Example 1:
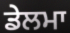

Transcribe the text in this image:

ਡੇਲਮਾ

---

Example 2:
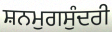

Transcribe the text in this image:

ਸ਼ਨਮੁਗਸੁੰਦਰੀ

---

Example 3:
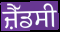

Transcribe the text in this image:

ਜ਼ੈੱਡਸੀ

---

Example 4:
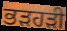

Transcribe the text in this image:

ਭੜਹੜੀ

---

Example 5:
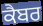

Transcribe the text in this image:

ਕੈਬਰ